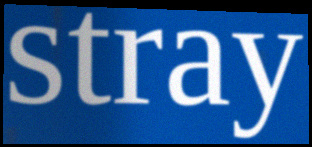
stray